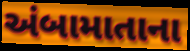
અંબામાતાના